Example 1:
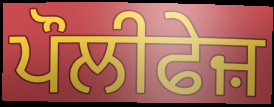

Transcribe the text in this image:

ਪੌਲੀਫੇਜ਼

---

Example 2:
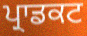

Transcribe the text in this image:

ਪ੍ਰਾਡਕਟ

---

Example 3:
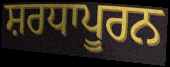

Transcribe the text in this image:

ਸ਼ਰਧਾਪੂਰਨ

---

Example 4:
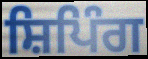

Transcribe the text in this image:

ਸ਼ਿਪਿੰਗ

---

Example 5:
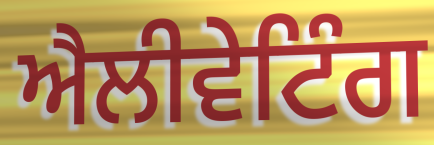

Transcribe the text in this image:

ਐਲੀਵੇਟਿੰਗ